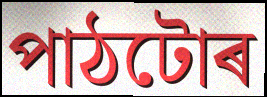
পাঠটোৰ